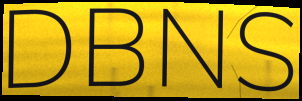
DBNS